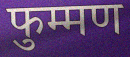
फुम्मण